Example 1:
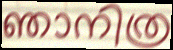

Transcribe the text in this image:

ഞാനിത്ര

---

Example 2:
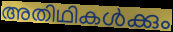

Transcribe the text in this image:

അതിഥികൾക്കും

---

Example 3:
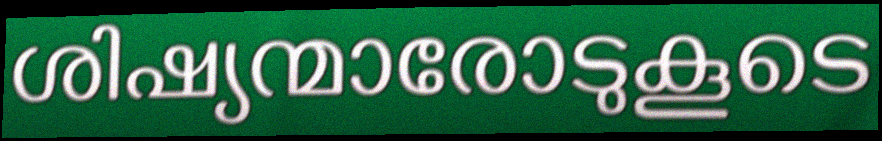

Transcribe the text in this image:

ശിഷ്യന്മാരോടുകൂടെ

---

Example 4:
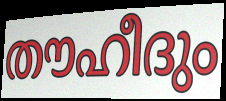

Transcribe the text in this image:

തൗഹീദും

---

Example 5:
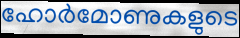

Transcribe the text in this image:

ഹോർമോണുകളുടെ